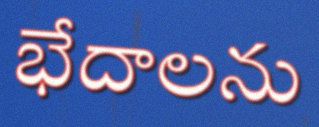
భేదాలను